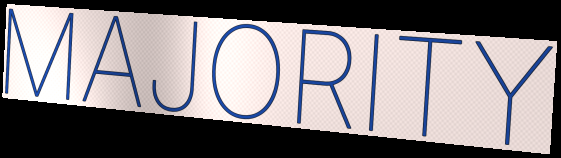
MAJORITY